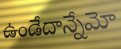
ఉండేదాన్నేమో